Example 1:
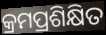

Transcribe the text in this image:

କ୍ରମପ୍ରଶିକ୍ଷିତ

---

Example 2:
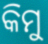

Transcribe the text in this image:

କିମୁ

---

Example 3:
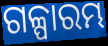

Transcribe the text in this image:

ଗଳ୍ପାରମ୍ଭ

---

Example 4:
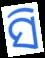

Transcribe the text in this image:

ସି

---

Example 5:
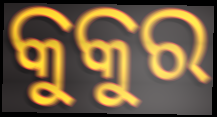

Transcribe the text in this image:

କୁକୁର